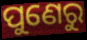
ପୁଣେରୁ